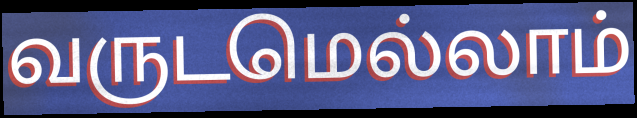
வருடமெல்லாம்